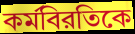
কর্মবিরতিকে